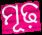
ମୂଢ଼